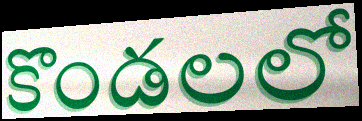
కొండలలో